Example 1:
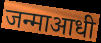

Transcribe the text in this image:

जन्माआधी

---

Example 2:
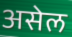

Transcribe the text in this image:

असेल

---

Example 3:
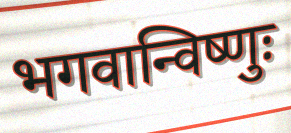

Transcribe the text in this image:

भगवान्विष्णुः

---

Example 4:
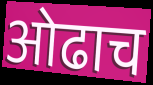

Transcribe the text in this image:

ओढाच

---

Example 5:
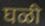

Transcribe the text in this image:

घळी